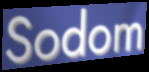
Sodom